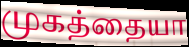
முகத்தையா